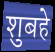
शुबहे